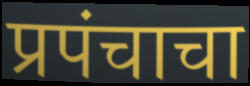
प्रपंचाचा